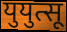
युयुत्सू